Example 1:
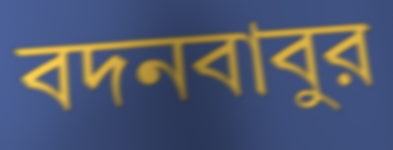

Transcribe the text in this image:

বদনবাবুর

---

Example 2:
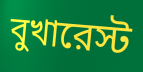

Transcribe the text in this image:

বুখারেস্ট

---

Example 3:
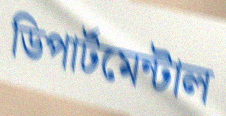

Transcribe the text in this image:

ডিপার্টমেন্টাল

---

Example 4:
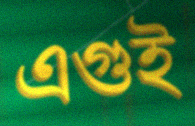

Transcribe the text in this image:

এগুই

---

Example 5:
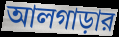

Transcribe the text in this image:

আলগাড়ার